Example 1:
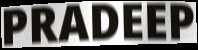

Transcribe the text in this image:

PRADEEP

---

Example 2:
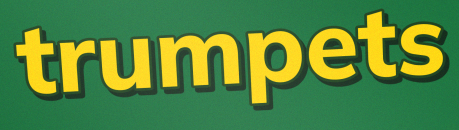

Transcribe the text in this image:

trumpets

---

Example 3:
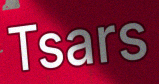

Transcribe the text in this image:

Tsars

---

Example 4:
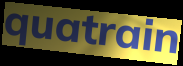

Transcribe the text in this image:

quatrain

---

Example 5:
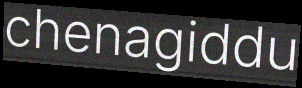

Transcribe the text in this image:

chenagiddu